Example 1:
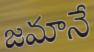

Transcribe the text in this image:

జమానే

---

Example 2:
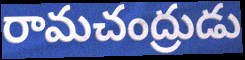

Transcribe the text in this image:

రామచంద్రుడు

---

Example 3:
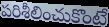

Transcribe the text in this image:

పరిశీలించుకొంటే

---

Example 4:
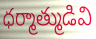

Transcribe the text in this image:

ధర్మాత్ముడివి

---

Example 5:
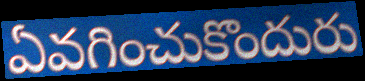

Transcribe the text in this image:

ఏవగించుకొందురు